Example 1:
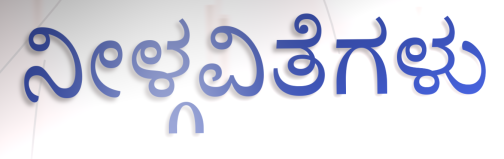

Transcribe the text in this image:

ನೀಳ್ಗವಿತೆಗಳು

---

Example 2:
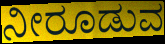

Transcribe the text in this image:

ನೀರೂಡುವ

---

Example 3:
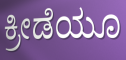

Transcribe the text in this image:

ಕ್ರೀಡೆಯೂ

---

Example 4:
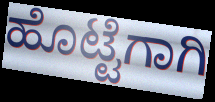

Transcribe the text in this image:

ಹೊಟ್ಟೆಗಾಗಿ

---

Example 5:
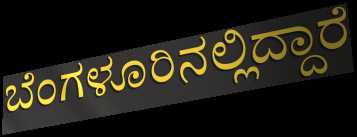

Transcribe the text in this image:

ಬೆಂಗಳೂರಿನಲ್ಲಿದ್ದಾರೆ